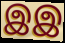
இஇ